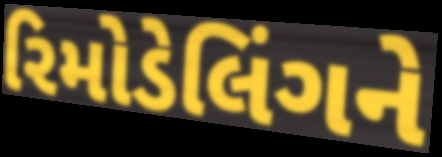
રિમોડેલિંગને